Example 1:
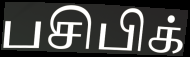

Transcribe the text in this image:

பசிபிக்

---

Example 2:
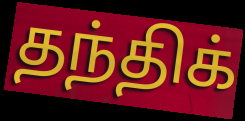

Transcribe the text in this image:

தந்திக்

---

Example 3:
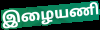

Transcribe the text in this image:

இழையணி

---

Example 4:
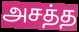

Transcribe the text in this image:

அசத்த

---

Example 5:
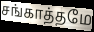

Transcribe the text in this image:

சங்காத்தமே